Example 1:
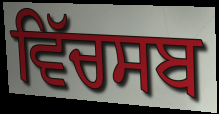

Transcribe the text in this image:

ਵਿੱਚਸਬ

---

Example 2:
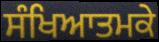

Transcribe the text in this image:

ਸੰਖਿਆਤਮਕੇ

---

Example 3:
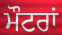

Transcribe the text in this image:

ਮੌਟਰਾਂ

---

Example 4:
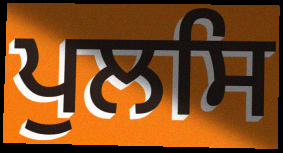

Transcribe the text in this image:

ਪੁਲਸਿ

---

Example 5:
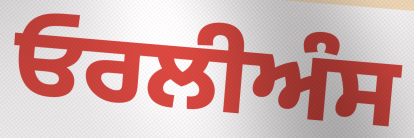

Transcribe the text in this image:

ਓਰਲੀਅੰਸ